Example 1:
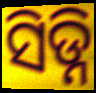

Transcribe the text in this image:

ସିଡ୍ନି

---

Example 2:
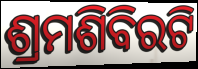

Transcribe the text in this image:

ଶ୍ରମଶିବିରଟି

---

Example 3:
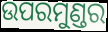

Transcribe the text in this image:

ଉପରମୁଣ୍ଡର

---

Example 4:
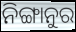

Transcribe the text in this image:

ନିଙ୍ଗାନୁର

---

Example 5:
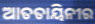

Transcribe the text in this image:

ଆତତାୟିନୀର